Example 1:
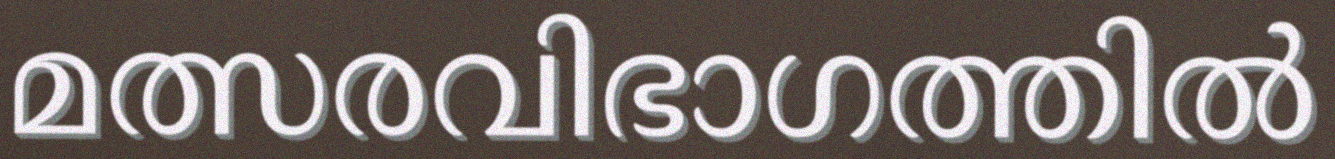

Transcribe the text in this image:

മത്സരവിഭാഗത്തിൽ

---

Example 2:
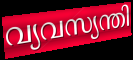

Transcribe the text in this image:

വ്യവസ്യന്തി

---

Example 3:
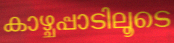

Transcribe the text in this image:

കാഴ്ചപ്പാടിലൂടെ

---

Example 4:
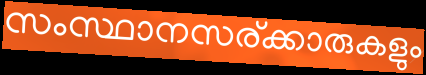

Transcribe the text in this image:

സംസ്ഥാനസര്ക്കാരുകളും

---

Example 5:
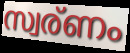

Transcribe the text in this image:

സ്വര്ണം